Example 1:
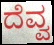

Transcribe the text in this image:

ದೆವ್ವ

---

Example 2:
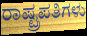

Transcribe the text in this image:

ರಾಷ್ಟ್ರಪತಿಗಳು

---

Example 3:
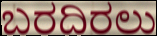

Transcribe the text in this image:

ಬರದಿರಲು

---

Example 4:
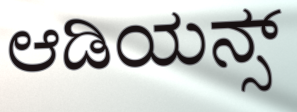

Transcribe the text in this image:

ಆಡಿಯನ್ಸ್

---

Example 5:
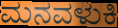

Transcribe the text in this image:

ಮನವಳುಕಿ